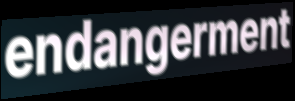
endangerment